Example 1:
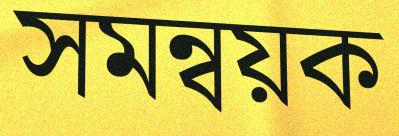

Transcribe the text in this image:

সমন্বয়ক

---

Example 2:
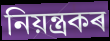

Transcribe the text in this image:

নিয়ন্ত্ৰকৰ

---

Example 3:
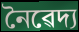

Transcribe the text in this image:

নৈৱেদ্য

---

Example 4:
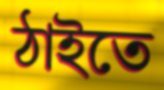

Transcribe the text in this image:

ঠাইতে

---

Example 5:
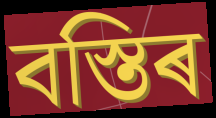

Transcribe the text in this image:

বস্তিৰ